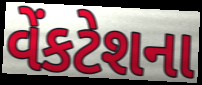
વેંકટેશના